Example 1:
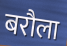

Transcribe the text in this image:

बरौला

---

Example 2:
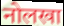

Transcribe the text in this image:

नोलखा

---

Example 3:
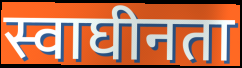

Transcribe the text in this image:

स्वाघीनता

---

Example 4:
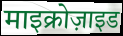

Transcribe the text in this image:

माइक्रोज़ाइड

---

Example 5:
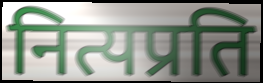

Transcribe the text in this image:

नित्यप्रति